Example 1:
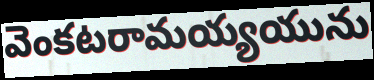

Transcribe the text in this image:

వెంకటరామయ్యయును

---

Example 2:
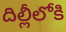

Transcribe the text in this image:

దిల్లీలోకి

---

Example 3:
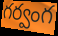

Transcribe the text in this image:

గర్వంగ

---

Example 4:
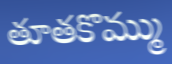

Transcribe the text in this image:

తూతకొమ్ము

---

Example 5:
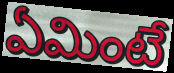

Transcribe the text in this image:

ఏమింటే